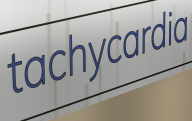
tachycardia